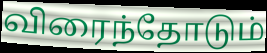
விரைந்தோடும்